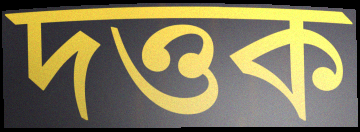
দত্তক